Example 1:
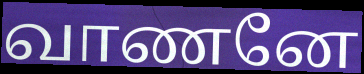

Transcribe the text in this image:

வாணனே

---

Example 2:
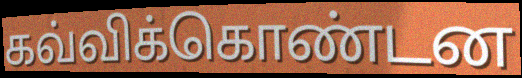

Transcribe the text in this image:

கவ்விக்கொண்டன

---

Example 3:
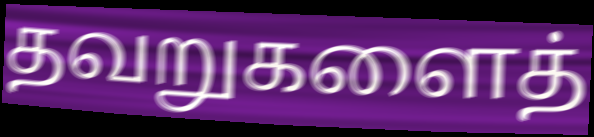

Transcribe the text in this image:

தவறுகளைத்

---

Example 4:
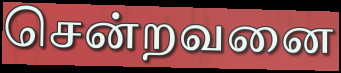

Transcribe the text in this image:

சென்றவனை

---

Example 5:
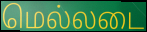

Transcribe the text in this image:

மெல்லடை